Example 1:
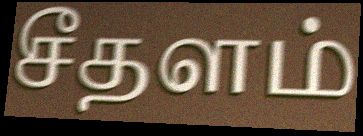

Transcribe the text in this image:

சீதளம்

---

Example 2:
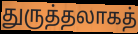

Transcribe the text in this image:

துருத்தலாகத்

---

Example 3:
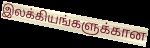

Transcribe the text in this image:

இலக்கியங்களுக்கான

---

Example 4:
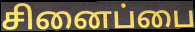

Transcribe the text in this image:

சினைப்பை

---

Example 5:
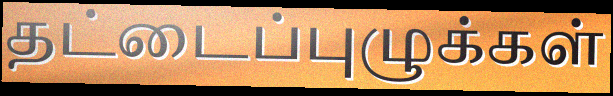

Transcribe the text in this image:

தட்டைப்புழுக்கள்